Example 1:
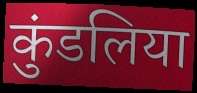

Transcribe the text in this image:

कुंडलिया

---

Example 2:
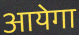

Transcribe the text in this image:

आयेगा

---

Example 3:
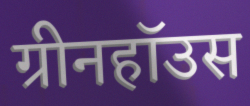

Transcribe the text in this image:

ग्रीनहॉउस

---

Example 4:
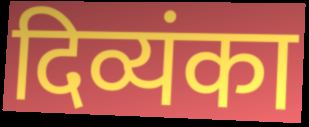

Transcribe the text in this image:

दिव्यंका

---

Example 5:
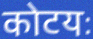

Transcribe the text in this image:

कोटयः